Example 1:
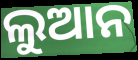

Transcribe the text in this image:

ଲୁଆନ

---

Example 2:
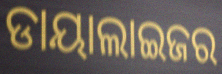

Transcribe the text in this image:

ଡାୟାଲାଇଜର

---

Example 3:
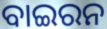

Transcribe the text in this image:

ବାଇରନ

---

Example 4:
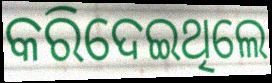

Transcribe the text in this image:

କରିଦେଇଥିଲେ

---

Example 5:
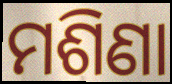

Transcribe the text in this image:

ମଶିଣା